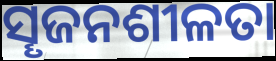
ସୄଜନଶୀଳତା